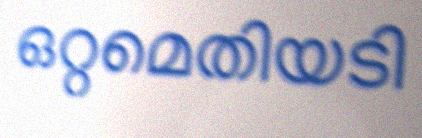
ഒറ്റമെതിയടി